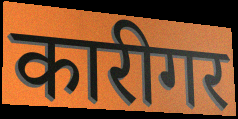
कारीगर